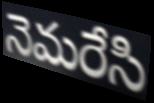
నెమరేసి